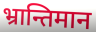
भ्रान्तिमान